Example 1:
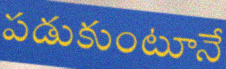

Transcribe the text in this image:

పడుకుంటూనే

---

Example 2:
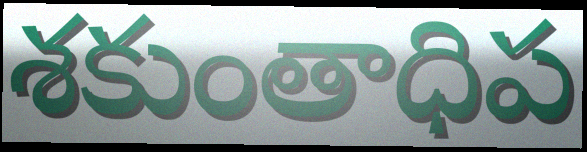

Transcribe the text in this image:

శకుంతాధిప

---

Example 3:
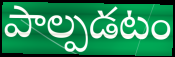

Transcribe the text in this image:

పాల్పడటం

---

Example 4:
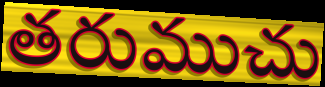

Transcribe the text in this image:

తరుముచు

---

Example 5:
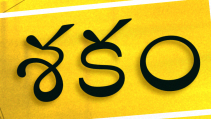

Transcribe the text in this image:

శకం